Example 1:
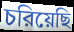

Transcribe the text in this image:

চরিয়েছি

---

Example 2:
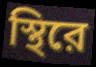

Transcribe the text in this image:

স্থিরে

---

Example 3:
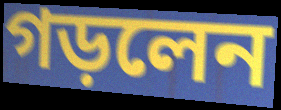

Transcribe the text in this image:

গড়লেন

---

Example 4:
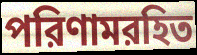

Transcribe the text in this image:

পরিণামরহিত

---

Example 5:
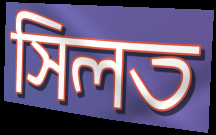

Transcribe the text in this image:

সিলত